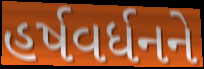
હર્ષવર્ધનને